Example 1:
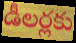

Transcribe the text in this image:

డీలర్లకు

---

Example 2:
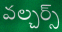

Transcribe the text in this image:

వల్చర్స్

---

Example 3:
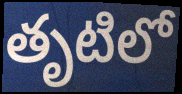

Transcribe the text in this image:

తృటిలో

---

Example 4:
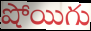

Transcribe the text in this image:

షోయిగు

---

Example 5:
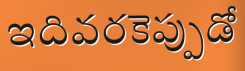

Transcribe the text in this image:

ఇదివరకెప్పుడో